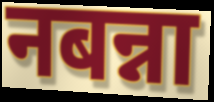
नबन्ना